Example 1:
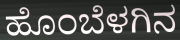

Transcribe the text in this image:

ಹೊಂಬೆಳಗಿನ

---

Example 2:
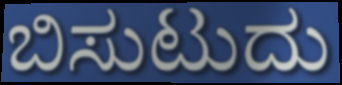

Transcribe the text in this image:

ಬಿಸುಟುದು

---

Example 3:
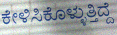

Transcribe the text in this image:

ಕೇಳಿಸಿಕೊಳ್ಳುತ್ತಿದ್ದೆ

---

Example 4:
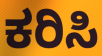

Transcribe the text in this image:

ಕರಿಸಿ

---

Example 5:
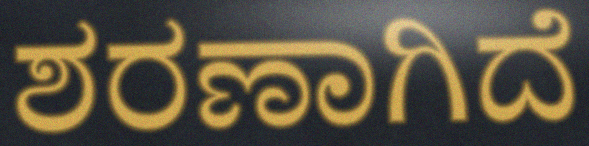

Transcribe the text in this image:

ಶರಣಾಗಿದೆ